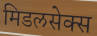
मिडलसेक्स